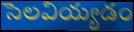
సెలవియ్యడం